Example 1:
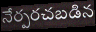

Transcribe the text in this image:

నేర్పరచబడిన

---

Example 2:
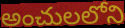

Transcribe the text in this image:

అంచులలోని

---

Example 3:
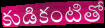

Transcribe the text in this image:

కుడికంటితో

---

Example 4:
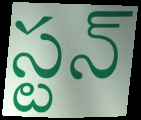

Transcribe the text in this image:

స్టన్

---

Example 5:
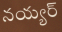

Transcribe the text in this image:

నయ్యర్